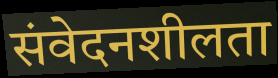
संवेदनशीलता